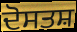
ਦੋਸਤਸ਼